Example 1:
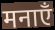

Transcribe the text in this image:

मनाएँ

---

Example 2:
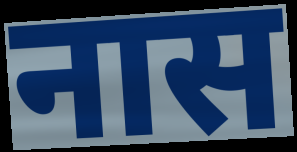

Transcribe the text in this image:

नास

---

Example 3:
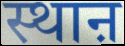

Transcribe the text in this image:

स्थाऩ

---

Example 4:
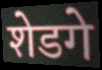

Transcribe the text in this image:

शेडगे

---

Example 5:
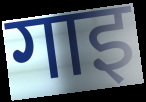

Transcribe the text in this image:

गाइ